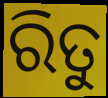
ରିତୁ